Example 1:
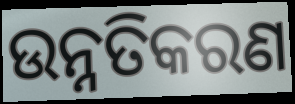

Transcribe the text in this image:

ଉନ୍ନତିକରଣ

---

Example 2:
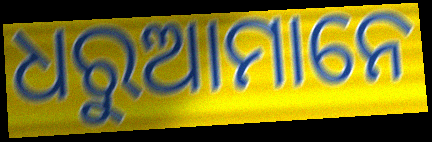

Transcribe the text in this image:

ଧରୁଆମାନେ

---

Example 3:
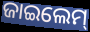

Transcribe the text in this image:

ଜାଇଲେମ୍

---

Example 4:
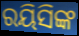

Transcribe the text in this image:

ରୟିସିଙ୍କ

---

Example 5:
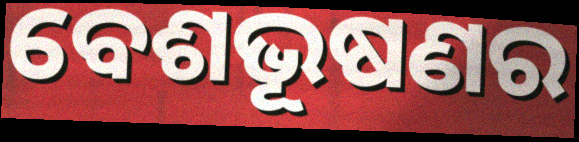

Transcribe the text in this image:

ବେଶଭୂଷଣର